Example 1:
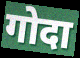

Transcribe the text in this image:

गोदा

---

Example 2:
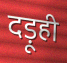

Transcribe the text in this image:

दड़ूही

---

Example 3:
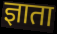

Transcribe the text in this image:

ज्ञाता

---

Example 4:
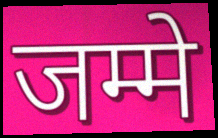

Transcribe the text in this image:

जम्मे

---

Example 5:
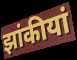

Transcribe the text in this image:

झांकीयां